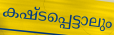
കഷ്ടപ്പെട്ടാലും